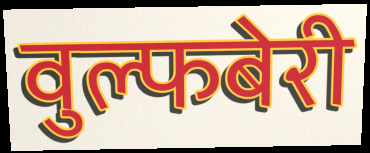
वुल्फबेरी